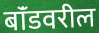
बॉंडवरील